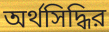
অর্থসিদ্ধির